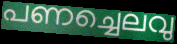
പണച്ചെലവു